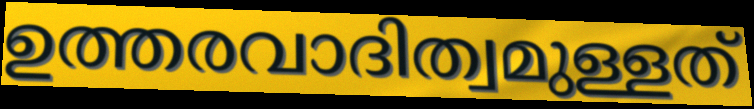
ഉത്തരവാദിത്വമുള്ളത്